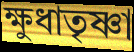
ক্ষুধাতৃষ্ণা